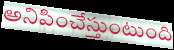
అనిపించేస్తుంటుంది